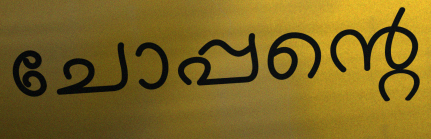
ചോപ്പന്റെ